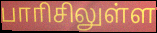
பாரிசிலுள்ள